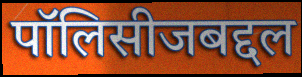
पॉलिसीजबद्दल